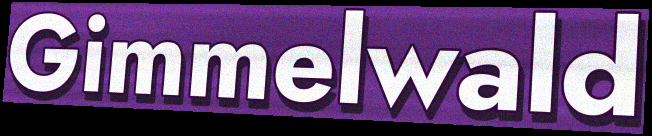
Gimmelwald